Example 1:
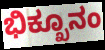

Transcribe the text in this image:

ಭಿಕ್ಖೂನಂ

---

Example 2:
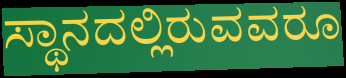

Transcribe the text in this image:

ಸ್ಥಾನದಲ್ಲಿರುವವರೂ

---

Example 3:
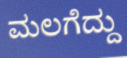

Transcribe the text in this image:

ಮಲಗೆದ್ದು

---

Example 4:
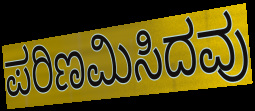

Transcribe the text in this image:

ಪರಿಣಮಿಸಿದವು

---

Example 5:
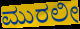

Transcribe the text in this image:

ಮುರಲೀ